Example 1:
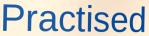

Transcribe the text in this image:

Practised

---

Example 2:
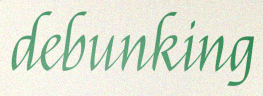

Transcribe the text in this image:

debunking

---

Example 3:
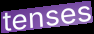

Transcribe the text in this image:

tenses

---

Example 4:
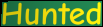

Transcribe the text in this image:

Hunted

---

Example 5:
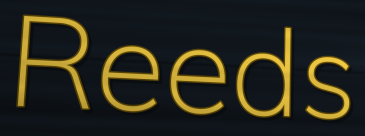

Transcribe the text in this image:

Reeds